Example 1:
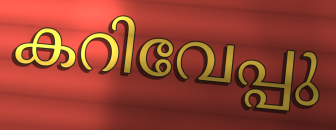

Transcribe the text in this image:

കറിവേപ്പു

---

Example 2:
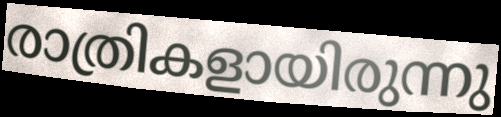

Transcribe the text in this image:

രാത്രികളായിരുന്നു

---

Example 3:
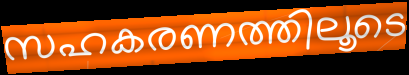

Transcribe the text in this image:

സഹകരണത്തിലൂടെ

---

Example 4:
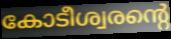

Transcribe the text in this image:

കോടീശ്വരന്റെ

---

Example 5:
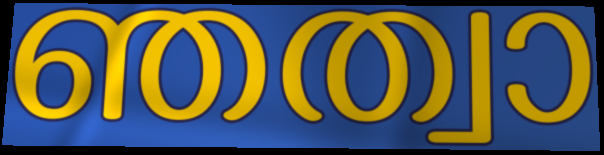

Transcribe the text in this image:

ഞത്വാ